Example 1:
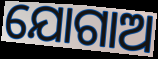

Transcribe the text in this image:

ଯୋଗାଅ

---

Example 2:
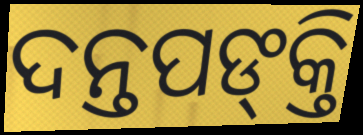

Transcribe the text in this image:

ଦନ୍ତପଙ୍‍କ୍ତି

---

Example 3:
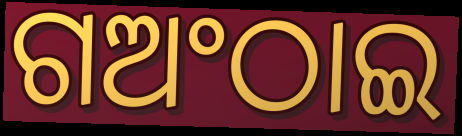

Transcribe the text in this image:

ଗଅଂଠାଇ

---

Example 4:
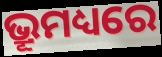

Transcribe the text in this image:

ଭ୍ରୂମଧ୍ୟରେ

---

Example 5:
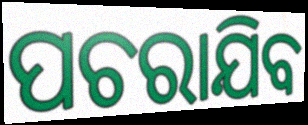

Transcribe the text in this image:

ପଚରାଯିବ